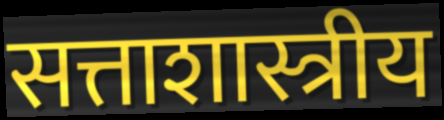
सत्ताशास्त्रीय